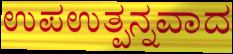
ಉಪಉತ್ಪನ್ನವಾದ